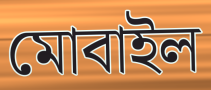
মোবাইল